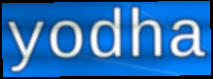
yodha